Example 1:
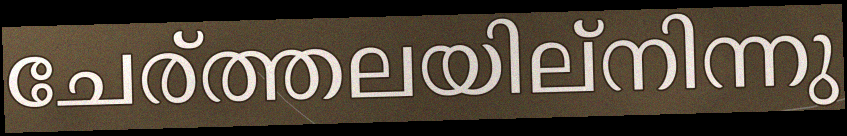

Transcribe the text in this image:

ചേര്ത്തലയില്നിന്നു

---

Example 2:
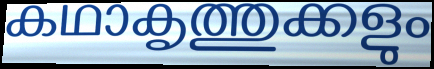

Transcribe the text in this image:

കഥാകൃത്തുക്കളും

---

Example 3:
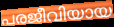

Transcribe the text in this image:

പരജീവിയായ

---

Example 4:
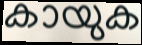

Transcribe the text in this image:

കായുക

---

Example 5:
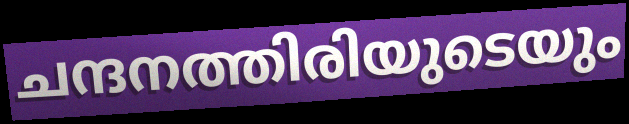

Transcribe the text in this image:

ചന്ദനത്തിരിയുടെയും